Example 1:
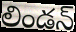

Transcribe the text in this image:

లిండన్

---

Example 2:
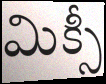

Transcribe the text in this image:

మిక్సీ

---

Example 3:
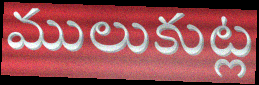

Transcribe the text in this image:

ములుకుట్ల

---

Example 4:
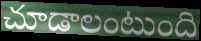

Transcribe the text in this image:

చూడాలంటుంది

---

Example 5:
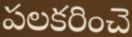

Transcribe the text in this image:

పలకరించె